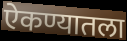
ऐकण्यातला